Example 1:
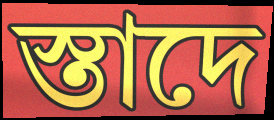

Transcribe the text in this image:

স্তাদে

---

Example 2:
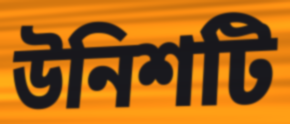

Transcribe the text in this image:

উনিশটি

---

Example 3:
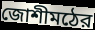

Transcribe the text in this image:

জোশীমঠের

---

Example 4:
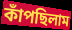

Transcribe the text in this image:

কাঁপছিলাম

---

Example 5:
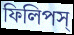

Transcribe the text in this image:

ফিলিপস্